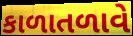
કાળાતળાવે